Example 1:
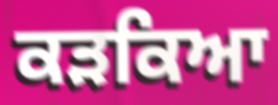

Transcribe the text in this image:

ਕੜਕਿਆ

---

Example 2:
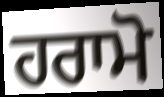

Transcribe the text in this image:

ਹਰਾਮੋ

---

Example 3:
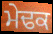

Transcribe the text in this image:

ਮੇਢਕ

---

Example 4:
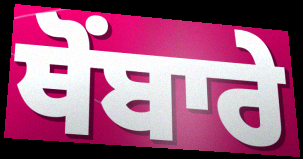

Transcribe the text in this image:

ਥੋਂਬਾਰੇ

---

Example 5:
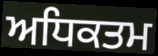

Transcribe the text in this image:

ਅਧਿਕਤਮ